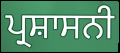
ਪ੍ਰਸ਼ਾਸਨੀ